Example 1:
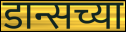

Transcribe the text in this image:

डान्सच्या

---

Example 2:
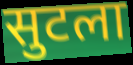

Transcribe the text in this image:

सुटला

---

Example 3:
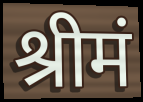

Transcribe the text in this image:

श्रीमं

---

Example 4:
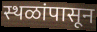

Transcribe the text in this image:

स्थळांपासून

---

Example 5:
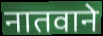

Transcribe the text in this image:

नातवाने